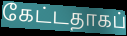
கேட்டதாகப்